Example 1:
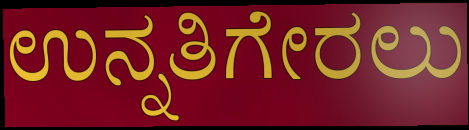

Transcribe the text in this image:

ಉನ್ನತಿಗೇರಲು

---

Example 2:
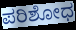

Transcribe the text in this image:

ಪರಿಶೋಧ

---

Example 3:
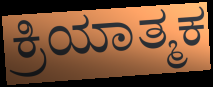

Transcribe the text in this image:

ಕ್ರಿಯಾತ್ಮಕ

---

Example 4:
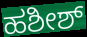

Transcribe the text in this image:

ಹಶೀಶ್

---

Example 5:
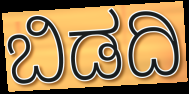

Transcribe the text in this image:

ಬಿಡದಿ